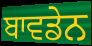
ਬਾਵਡੇਨ